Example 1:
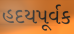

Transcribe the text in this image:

હદયપૂર્વક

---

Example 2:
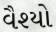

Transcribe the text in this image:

વૈશ્યો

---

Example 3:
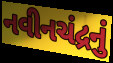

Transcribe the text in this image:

નવીનચંદ્રનું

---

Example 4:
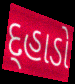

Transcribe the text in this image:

દ્હાડો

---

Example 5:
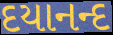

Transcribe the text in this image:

દયાનન્દ